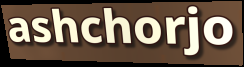
ashchorjo